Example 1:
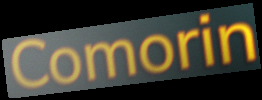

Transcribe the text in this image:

Comorin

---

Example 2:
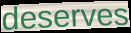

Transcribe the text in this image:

deserves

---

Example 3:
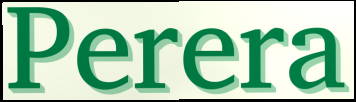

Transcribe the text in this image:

Perera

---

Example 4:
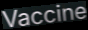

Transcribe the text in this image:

Vaccine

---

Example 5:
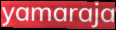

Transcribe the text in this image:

yamaraja